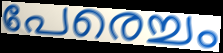
പേരെച്ചം